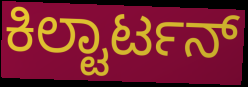
ಕಿಲ್ಟಾರ್ಟನ್